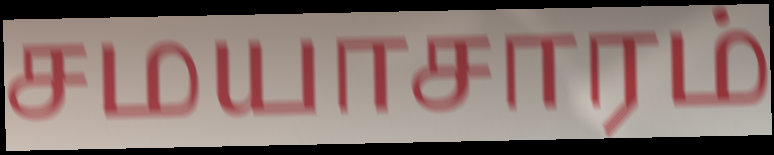
சமயாசாரம்